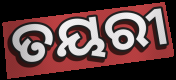
ତୟରୀ